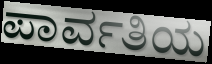
ಪಾರ್ವತಿಯ